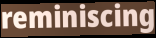
reminiscing